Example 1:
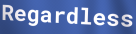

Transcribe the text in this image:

Regardless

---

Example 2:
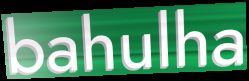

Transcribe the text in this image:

bahulha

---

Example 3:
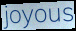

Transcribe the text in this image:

joyous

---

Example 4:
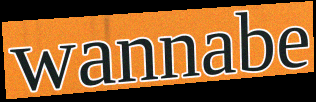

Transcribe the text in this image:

wannabe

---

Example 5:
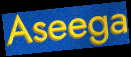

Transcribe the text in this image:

Aseega